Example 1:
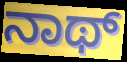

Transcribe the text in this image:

ನಾಥ್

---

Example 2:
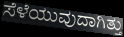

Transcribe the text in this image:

ಸೆಳೆಯುವುದಾಗಿತ್ತು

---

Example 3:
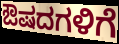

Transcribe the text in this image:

ಔಷದಗಳಿಗೆ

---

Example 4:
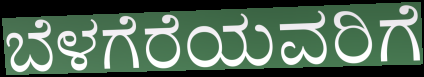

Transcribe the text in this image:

ಬೆಳಗೆರೆಯವರಿಗೆ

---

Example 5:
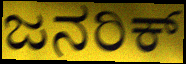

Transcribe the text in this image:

ಜನರಿಕ್